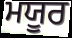
ਮਯੂਰ